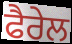
ਫੈਰੇਲ